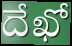
దేఖో